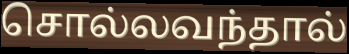
சொல்லவந்தால்